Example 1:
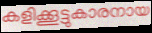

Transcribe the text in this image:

കളിക്കൂട്ടുകാരനായ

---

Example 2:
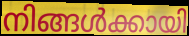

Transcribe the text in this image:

നിങ്ങൾക്കായി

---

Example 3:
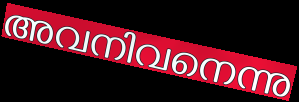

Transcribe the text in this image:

അവനിവനെന്നു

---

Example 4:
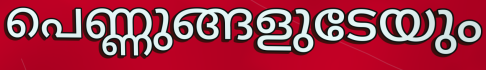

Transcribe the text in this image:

പെണ്ണുങ്ങളുടേയും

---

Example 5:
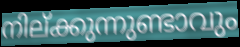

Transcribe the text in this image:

നില്ക്കുന്നുണ്ടാവും